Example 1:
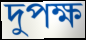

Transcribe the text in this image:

দুপক্ষ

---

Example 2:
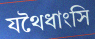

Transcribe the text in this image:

যথৈধাংসি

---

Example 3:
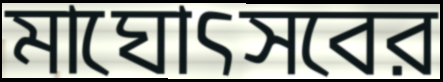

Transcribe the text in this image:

মাঘোৎসবের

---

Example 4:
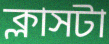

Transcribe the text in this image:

ক্লাসটা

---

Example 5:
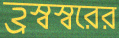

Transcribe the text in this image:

হ্রস্বস্বরের